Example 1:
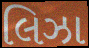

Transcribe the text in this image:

લિઝા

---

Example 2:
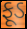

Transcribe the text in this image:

ફૂડ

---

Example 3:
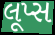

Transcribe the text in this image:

લૂપ્સ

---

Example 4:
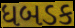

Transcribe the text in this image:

ધબડક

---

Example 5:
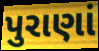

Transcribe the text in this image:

પુરાણાં